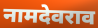
नामदेवराव